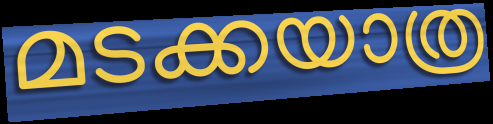
മടക്കയാത്ര